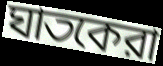
ঘাতকেরা